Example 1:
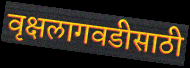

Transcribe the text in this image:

वृक्षलागवडीसाठी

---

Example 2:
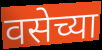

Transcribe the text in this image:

वसेच्या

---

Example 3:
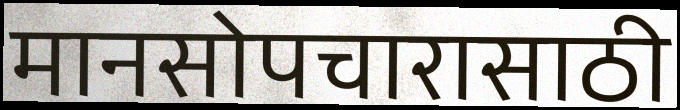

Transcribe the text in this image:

मानसोपचारासाठी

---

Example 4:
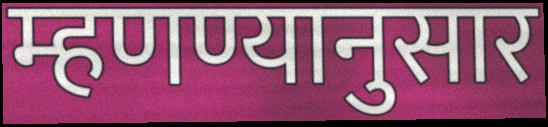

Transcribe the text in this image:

म्हणण्यानुसार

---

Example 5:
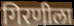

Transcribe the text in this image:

गिरणीला